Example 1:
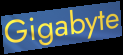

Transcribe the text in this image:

Gigabyte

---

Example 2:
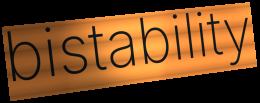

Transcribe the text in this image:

bistability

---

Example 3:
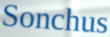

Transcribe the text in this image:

Sonchus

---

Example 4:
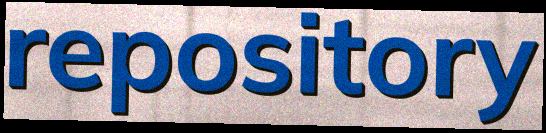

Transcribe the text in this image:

repository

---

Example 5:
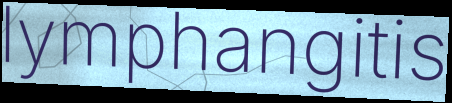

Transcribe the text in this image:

lymphangitis